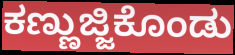
ಕಣ್ಣುಜ್ಜಿಕೊಂಡು